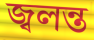
জ্বলন্ত